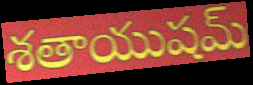
శతాయుషమ్